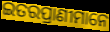
ଇତରପ୍ରାଣୀମାନେ